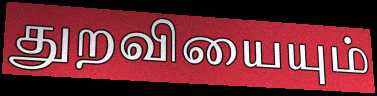
துறவியையும்